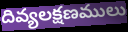
దివ్యలక్షణములు